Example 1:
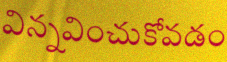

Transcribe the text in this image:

విన్నవించుకోవడం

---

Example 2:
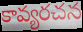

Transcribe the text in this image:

కావ్యరచన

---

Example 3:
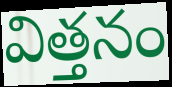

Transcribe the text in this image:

విత్తనం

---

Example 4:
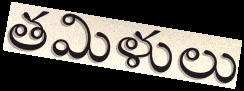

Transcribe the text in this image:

తమిళులు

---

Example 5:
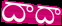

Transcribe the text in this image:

దాదా